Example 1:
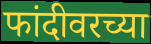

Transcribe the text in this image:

फांदीवरच्या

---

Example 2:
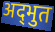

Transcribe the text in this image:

अद्‍भुत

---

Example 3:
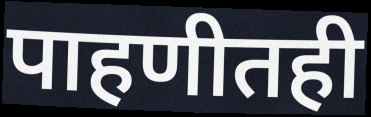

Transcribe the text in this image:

पाहणीतही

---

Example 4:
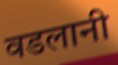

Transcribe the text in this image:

वडलानी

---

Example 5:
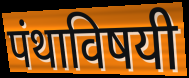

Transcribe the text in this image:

पंथाविषयी